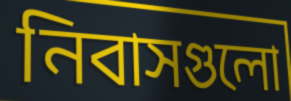
নিবাসগুলো